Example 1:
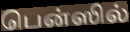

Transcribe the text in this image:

பென்ஸில்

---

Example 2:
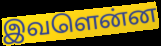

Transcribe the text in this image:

இவளென்ன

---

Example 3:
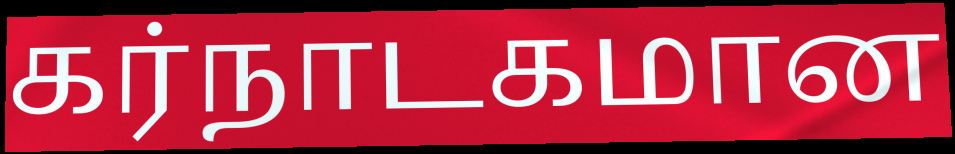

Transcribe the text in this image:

கர்நாடகமான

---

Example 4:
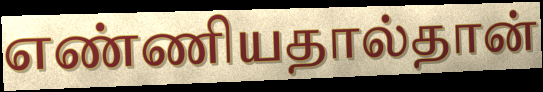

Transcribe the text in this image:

எண்ணியதால்தான்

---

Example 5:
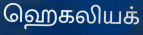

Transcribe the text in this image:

ஹெகலியக்